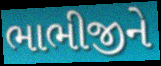
ભાભીજીને